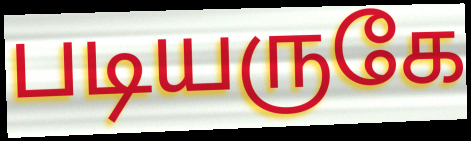
படியருகே